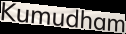
Kumudham